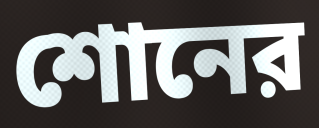
শোনের